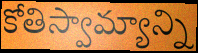
కోతిస్వామ్యాన్ని